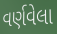
વર્ણવેલા